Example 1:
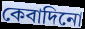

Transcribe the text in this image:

কেবাদিনো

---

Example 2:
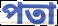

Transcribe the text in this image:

পতা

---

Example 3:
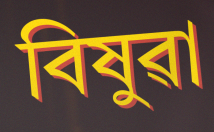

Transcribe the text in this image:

বিষুৱা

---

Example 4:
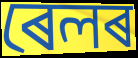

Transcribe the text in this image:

ৰেলৰ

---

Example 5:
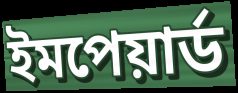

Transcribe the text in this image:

ইমপেয়াৰ্ড